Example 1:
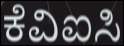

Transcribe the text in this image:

ಕೆವಿಐಸಿ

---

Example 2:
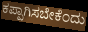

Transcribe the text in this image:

ಕಪ್ಪಾಗಿಸಬೇಕೆಂದು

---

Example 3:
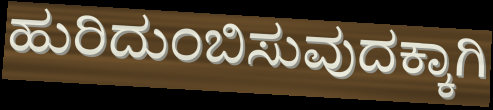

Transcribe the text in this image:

ಹುರಿದುಂಬಿಸುವುದಕ್ಕಾಗಿ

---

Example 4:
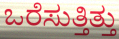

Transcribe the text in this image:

ಒರೆಸುತ್ತಿತ್ತು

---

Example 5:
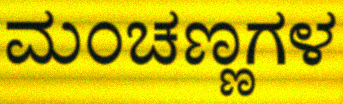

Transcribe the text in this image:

ಮಂಚಣ್ಣಗಳ